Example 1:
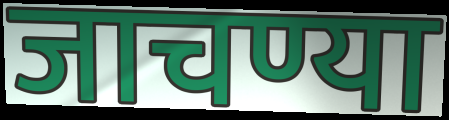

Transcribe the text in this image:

जाचण्या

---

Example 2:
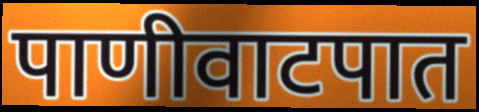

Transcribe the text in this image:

पाणीवाटपात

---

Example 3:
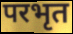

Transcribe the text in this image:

परभृत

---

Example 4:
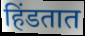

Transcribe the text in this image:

हिंडतात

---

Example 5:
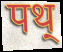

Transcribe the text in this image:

पथ्